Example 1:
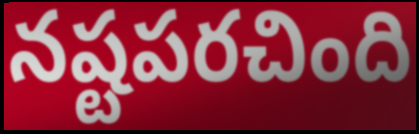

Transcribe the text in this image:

నష్టపరచింది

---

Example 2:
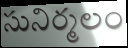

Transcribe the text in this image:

సునిర్మలం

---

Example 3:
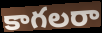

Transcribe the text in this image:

కాగలరా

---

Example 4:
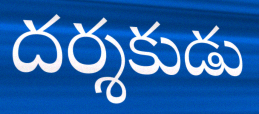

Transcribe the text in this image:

దర్శకుడు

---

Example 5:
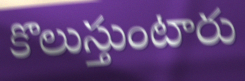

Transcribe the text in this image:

కొలుస్తుంటారు